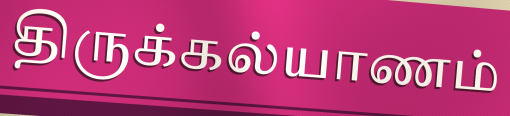
திருக்கல்யாணம்